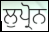
ਲੁਪ੍ਰੋਨ